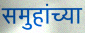
समुहांच्या